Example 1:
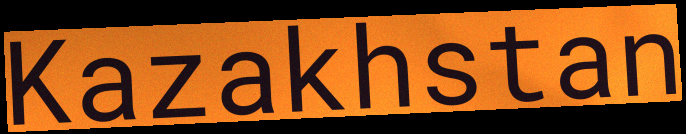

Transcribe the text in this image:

Kazakhstan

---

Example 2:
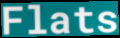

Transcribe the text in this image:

Flats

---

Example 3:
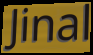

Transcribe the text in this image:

Jinal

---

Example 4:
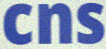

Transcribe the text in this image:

cns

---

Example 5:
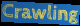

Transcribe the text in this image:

Crawling